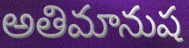
అతిమానుష